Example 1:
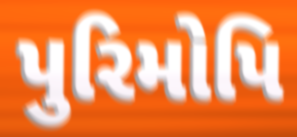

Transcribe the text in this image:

પુરિમોપિ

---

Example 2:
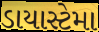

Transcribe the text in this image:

ડાયાસ્ટેમા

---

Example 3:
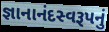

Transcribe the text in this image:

જ્ઞાનાનંદસ્વરૂપનું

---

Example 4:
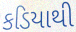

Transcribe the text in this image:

કડિયાથી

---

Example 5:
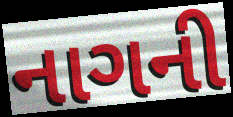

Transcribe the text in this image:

નાગની